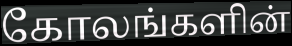
கோலங்களின்